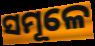
ସମୂଳେ